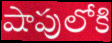
షాపులోకి